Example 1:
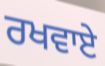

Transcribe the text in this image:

ਰਖਵਾਏ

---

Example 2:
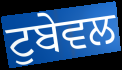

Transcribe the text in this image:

ਟੁਬੇਵਲ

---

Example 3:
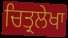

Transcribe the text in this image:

ਚਿਤ੍ਰਲੇਖਾ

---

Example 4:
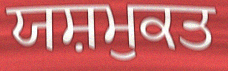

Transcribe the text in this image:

ਯਸ਼ਮੁਕਤ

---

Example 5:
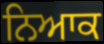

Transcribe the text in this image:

ਨਿਆਕ